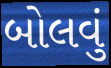
બોલવું